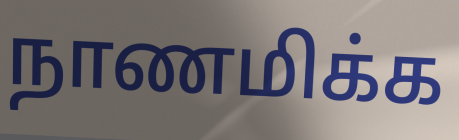
நாணமிக்க